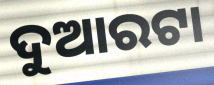
ଦୁଆରଟା